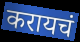
करायचं